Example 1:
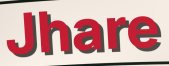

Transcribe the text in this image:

Jhare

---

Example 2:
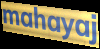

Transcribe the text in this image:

mahayaj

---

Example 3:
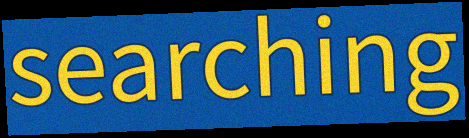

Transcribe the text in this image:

searching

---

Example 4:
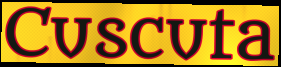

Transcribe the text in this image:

Cuscuta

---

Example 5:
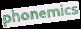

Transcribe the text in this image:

phonemics